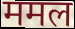
ममल